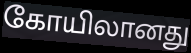
கோயிலானது